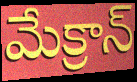
మేక్రాన్